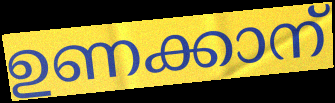
ഉണക്കാന്